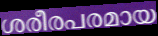
ശരീരപരമായ